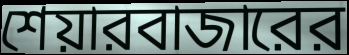
শেয়ারবাজারের